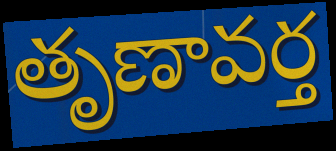
తృణావర్త